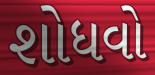
શોધવો